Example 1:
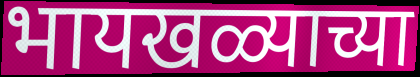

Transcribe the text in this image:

भायखळ्याच्या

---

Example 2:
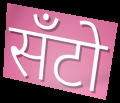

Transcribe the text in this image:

सँटो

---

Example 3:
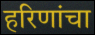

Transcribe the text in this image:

हरिणांचा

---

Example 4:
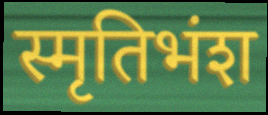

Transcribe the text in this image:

स्मृतिभंश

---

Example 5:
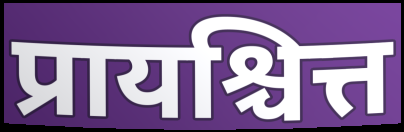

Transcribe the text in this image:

प्रायश्चित्त